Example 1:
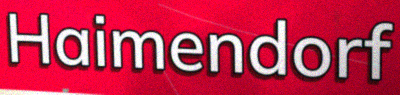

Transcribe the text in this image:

Haimendorf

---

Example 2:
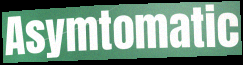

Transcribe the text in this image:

Asymtomatic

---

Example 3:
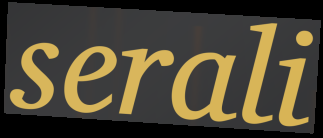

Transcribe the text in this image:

serali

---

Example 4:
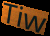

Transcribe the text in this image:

Tiw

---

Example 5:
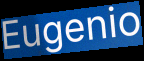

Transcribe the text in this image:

Eugenio